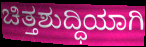
ಚಿತ್ತಶುದ್ಧಿಯಾಗಿ